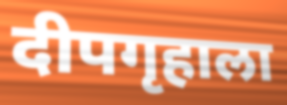
दीपगृहाला